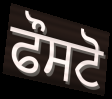
ਫੌਸਟੋ